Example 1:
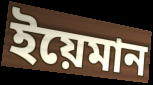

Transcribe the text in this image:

ইয়েমান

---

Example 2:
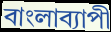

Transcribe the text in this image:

বাংলাব্যাপী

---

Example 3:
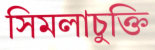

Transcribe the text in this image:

সিমলাচুক্তি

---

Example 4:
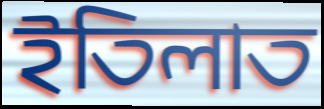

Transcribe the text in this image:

ইতিলাত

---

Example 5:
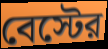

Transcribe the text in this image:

বেস্টের